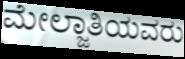
ಮೇಲ್ಜಾತಿಯವರು